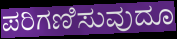
ಪರಿಗಣಿಸುವುದೂ